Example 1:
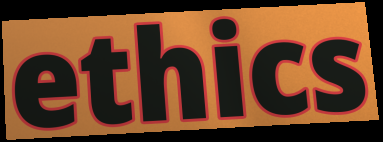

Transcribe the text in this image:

ethics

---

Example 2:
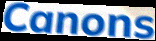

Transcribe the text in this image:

Canons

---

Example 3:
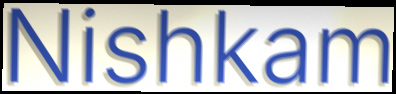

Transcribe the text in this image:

Nishkam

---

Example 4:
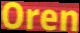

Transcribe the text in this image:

Oren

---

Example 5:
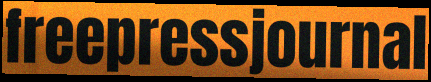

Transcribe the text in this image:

freepressjournal